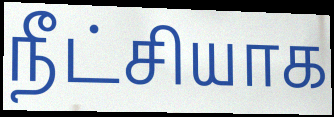
நீட்சியாக